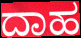
ದಾಹ